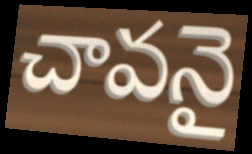
చావనై